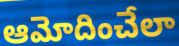
ఆమోదించేలా